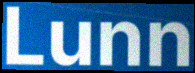
Lunn